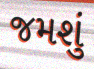
જમશું